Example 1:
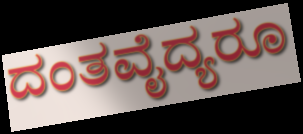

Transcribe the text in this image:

ದಂತವೈದ್ಯರೂ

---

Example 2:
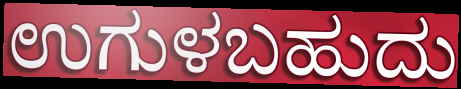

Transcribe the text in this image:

ಉಗುಳಬಹುದು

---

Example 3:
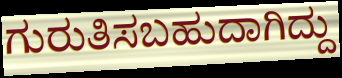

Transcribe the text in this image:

ಗುರುತಿಸಬಹುದಾಗಿದ್ದು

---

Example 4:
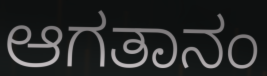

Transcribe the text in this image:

ಆಗತಾನಂ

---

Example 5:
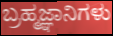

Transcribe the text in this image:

ಬ್ರಹ್ಮಜ್ಞಾನಿಗಳು